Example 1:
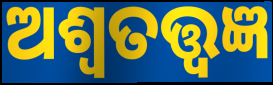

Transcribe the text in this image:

ଅଶ୍ୱତତ୍ତ୍ୱଜ୍ଞ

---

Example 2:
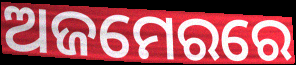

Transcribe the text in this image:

ଅଜମେରରେ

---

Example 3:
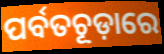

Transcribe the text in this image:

ପର୍ବତଚୂଡ଼ାରେ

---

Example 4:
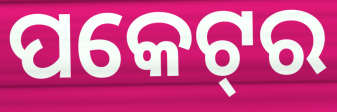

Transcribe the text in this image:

ପକେଟ୍‌ର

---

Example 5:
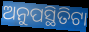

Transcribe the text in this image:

ଅନୁପସ୍ଥିତିଟା